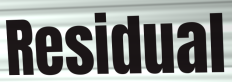
Residual